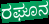
ರಘೂನ